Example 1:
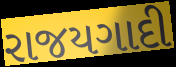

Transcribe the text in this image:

રાજયગાદી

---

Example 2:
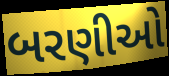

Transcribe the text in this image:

બરણીઓ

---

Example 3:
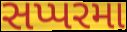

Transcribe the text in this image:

સપ્પરમા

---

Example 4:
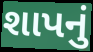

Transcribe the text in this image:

શાપનું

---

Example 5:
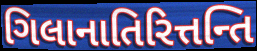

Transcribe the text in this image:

ગિલાનાતિરિત્તન્તિ